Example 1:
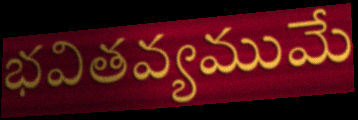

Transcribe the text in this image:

భవితవ్యముమే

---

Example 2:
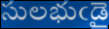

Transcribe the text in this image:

సులభుఁడై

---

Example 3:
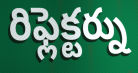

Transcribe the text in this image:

రిఫ్లెక్టర్ను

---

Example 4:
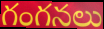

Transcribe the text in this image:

గంగనలు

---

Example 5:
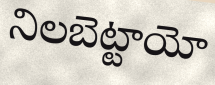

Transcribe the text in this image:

నిలబెట్టాయో